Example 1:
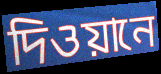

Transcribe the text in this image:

দিওয়ানে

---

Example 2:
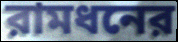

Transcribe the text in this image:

রামধনের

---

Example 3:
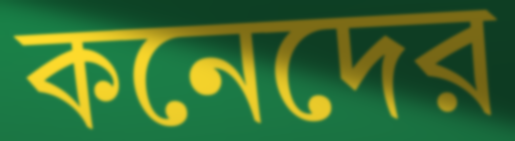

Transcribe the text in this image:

কনেদের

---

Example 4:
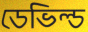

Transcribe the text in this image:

ডেভিল্ড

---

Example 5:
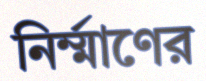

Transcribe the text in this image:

নির্ম্মাণের